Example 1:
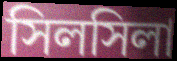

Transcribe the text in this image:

সিলসিলা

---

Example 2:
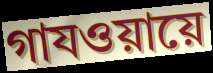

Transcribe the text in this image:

গাযওয়ায়ে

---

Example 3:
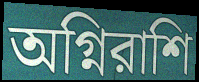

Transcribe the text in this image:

অগ্নিরাশি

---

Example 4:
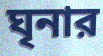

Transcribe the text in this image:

ঘৃনার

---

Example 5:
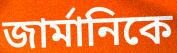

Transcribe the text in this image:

জার্মানিকে